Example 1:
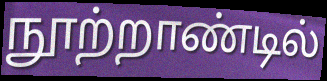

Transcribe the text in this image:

நூற்றாண்டில்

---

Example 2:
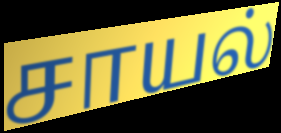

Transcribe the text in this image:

சாயல்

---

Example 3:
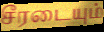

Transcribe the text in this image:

சீரடையும்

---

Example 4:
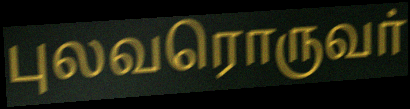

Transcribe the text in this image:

புலவரொருவர்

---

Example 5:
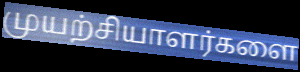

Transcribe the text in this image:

முயற்சியாளர்களை